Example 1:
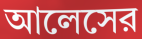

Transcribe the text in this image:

আলেসের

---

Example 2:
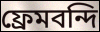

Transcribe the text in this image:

ফ্রেমবন্দি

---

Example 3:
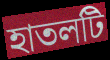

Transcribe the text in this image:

হাতলটি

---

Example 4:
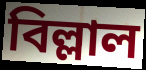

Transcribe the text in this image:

বিল্লাল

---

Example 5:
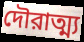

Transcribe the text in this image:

দৌরাত্ম্য